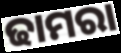
ଢାମରା